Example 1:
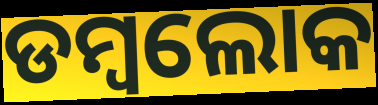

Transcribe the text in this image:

ଡମ୍ବଲୋକ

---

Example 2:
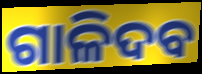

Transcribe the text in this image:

ଗାଳିଦବ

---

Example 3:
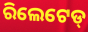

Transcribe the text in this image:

ରିଲେଟେଡ୍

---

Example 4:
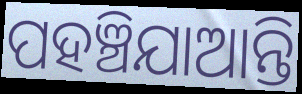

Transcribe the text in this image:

ପହଞ୍ଚିଯାଆନ୍ତି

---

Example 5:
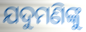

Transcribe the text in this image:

ଯଦୁମଣିଙ୍କୁ